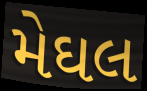
મેઘલ